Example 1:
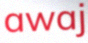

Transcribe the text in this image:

awaj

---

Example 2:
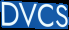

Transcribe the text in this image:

DVCS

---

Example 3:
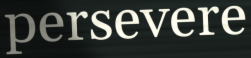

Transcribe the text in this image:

persevere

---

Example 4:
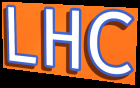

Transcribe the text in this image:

LHC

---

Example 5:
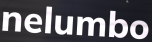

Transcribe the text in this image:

nelumbo